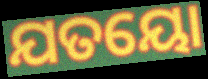
ଯତୟୋ